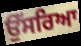
ਉੱਸਰਿਆ